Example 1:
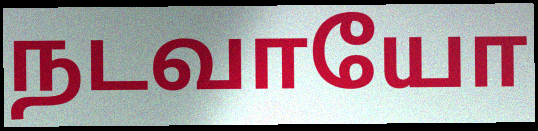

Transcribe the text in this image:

நடவாயோ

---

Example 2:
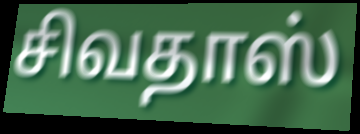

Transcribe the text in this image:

சிவதாஸ்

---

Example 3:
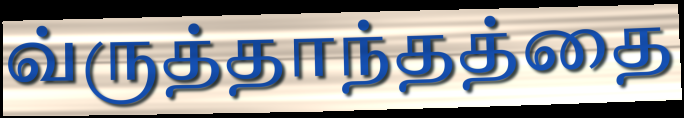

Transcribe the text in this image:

வ்ருத்தாந்தத்தை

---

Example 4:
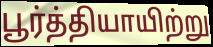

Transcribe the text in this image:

பூர்த்தியாயிற்று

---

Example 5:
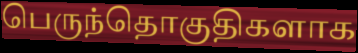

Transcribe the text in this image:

பெருந்தொகுதிகளாக